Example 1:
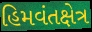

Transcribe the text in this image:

હિમવંતક્ષેત્ર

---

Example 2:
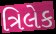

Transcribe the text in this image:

ત્રિલેક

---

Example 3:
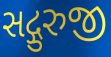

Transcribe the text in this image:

સદ્ગુરુજી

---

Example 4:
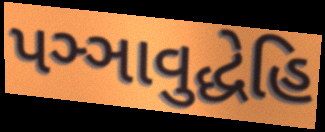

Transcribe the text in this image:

પઞ્ઞાવુદ્ધેહિ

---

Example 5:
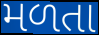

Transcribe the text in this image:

મળતા